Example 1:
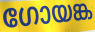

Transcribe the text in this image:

ഗോയങ്ക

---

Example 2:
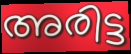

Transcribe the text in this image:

അരിട്ട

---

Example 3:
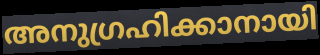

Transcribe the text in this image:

അനുഗ്രഹിക്കാനായി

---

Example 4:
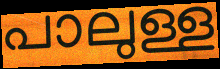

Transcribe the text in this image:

പാലുള്ള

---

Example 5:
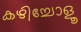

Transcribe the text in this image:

കഴിച്ചോളൂ